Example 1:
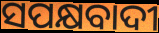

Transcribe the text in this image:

ସପକ୍ଷବାଦୀ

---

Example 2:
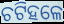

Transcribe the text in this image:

ଚଟିହଳେ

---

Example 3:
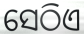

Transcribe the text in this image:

ସେଠିଏ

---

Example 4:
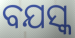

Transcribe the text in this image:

ବଯସ୍କ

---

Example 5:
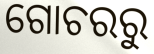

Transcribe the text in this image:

ଗୋଚରରୁ